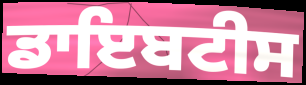
ਡਾਇਬਟੀਸ